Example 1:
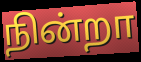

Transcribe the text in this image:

நின்றா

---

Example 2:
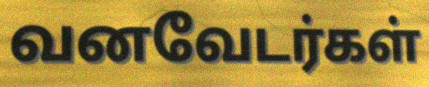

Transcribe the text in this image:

வனவேடர்கள்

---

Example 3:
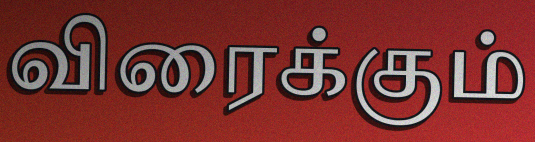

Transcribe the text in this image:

விரைக்கும்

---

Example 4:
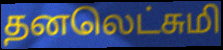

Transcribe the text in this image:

தனலெட்சுமி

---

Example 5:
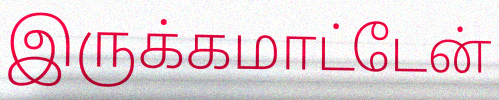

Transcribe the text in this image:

இருக்கமாட்டேன்